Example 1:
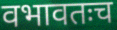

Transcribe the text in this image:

वभावतःच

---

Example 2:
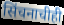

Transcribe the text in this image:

सिंचनाचीही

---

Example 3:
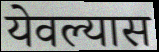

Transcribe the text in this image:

येवल्यास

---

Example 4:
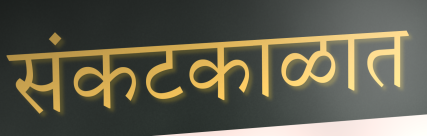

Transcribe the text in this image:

संकटकाळात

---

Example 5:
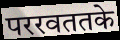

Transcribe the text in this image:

पररवततके